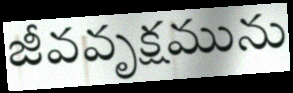
జీవవృక్షమును